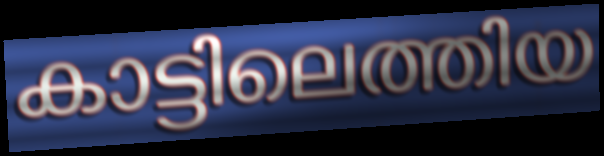
കാട്ടിലെത്തിയ